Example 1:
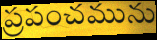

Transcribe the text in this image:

ప్రపంచమును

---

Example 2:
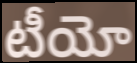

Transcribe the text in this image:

టీయో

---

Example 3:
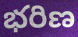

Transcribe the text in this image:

భరిణ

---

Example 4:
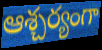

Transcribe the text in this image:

ఆశ్చర్యంగా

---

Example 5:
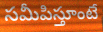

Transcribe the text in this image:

సమీపిస్తూంటే